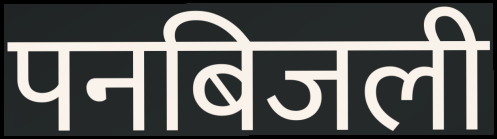
पनबिजली